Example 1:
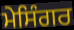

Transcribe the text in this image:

ਮੇਸਿੰਗਰ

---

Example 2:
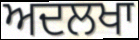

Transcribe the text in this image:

ਅਦਲਖਾ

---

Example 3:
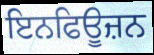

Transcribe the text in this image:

ਇਨਫਿਊਜ਼ਨ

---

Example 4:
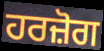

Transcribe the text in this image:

ਹਰਜ਼ੋਗ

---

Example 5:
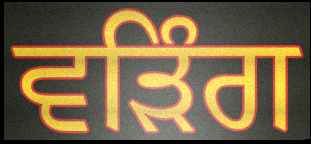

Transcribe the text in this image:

ਵੜਿੰਗ